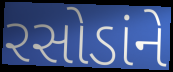
રસોડાંને